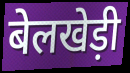
बेलखेड़ी